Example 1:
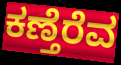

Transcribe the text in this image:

ಕಣ್ತೆರೆವ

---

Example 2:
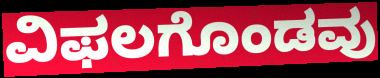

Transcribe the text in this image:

ವಿಫಲಗೊಂಡವು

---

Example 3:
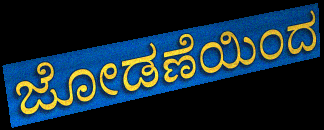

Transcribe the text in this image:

ಜೋಡಣೆಯಿಂದ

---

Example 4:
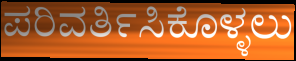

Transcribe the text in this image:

ಪರಿವರ್ತಿಸಿಕೊಳ್ಳಲು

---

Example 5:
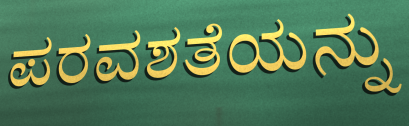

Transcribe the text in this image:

ಪರವಶತೆಯನ್ನು